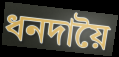
ধনদায়ৈ